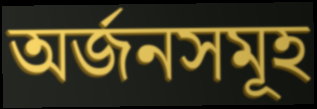
অর্জনসমূহ